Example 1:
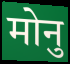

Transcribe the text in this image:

मोनु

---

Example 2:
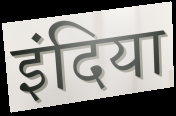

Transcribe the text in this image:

इंदिया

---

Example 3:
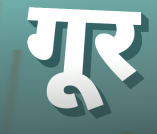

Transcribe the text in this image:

गूर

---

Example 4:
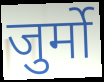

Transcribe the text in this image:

जुर्मो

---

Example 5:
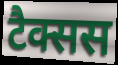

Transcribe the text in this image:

टैक्सस